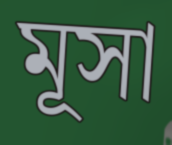
মূসা